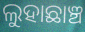
ଲୁହାଛାଞ୍ଚ